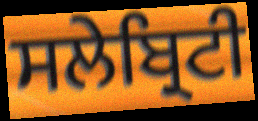
ਸਲੇਬ੍ਰਿਟੀ